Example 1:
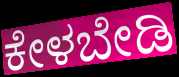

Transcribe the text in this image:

ಕೇಳಬೇಡಿ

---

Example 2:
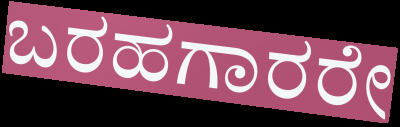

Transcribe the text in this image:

ಬರಹಗಾರರೇ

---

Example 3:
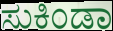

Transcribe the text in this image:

ಸುಕಿಂಡಾ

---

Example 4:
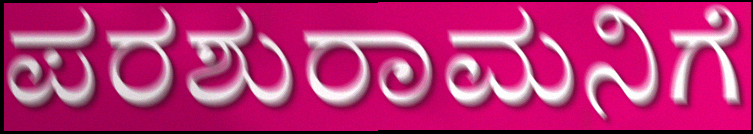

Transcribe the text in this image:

ಪರಶುರಾಮನಿಗೆ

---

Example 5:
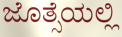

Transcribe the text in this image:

ಜೊತ್ಸೆಯಲ್ಲಿ